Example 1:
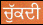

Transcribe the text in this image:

ਚੁੱਕਦੀ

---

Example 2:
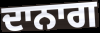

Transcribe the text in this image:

ਦਾਨਾਗ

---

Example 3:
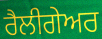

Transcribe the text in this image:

ਰੈਲੀਗੇਅਰ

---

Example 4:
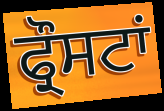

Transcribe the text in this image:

ਫ੍ਰੌਸਟਾਂ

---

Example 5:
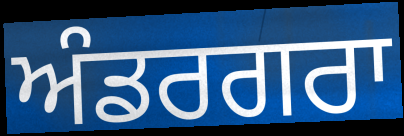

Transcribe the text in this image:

ਅੰਡਰਗਰਾ